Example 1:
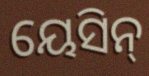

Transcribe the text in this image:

ୟେସିନ୍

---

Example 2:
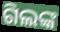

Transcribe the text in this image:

ଗିଲଙ୍କ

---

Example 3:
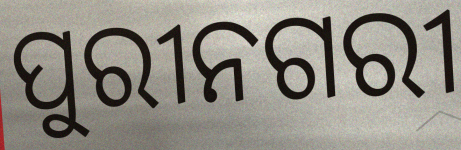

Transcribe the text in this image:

ପୁରୀନଗରୀ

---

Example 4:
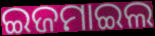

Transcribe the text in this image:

ଇଜମାଇଲ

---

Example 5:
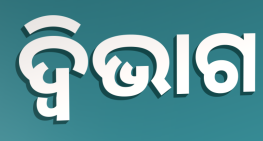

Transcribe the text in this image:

ଦ୍ୱିଭାଗ